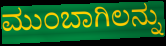
ಮುಂಬಾಗಿಲನ್ನು